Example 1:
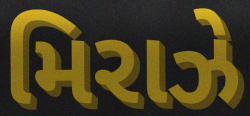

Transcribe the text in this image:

મિરાઝે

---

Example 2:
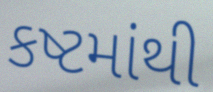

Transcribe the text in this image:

કષ્ટમાંથી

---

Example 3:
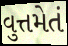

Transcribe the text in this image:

વુત્તમેતં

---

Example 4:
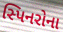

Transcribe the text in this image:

સ્પિનરોના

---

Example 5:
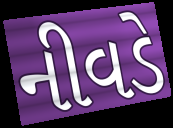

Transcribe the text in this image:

નીવડે